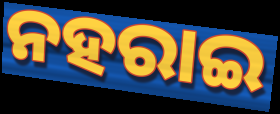
ନହରାଇ